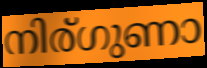
നിര്ഗുണാ